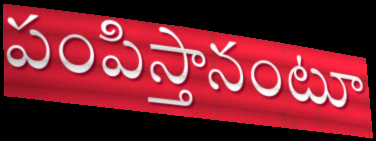
పంపిస్తానంటూ